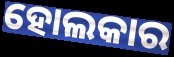
ହୋଲକାର